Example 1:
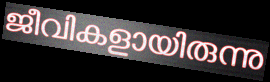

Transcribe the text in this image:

ജീവികളായിരുന്നു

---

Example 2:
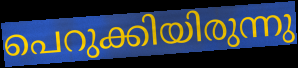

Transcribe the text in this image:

പെറുക്കിയിരുന്നു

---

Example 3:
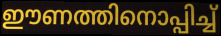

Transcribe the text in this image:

ഈണത്തിനൊപ്പിച്ച്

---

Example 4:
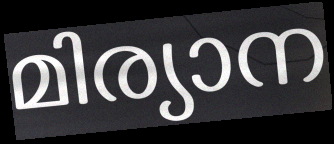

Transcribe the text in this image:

മിര്യാന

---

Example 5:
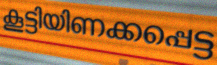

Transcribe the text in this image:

കൂട്ടിയിണക്കപ്പെട്ട